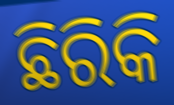
ଛିରିକି